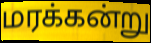
மரக்கன்று